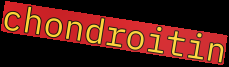
chondroitin